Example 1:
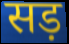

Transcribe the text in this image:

सड़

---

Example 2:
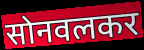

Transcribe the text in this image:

सोनवलकर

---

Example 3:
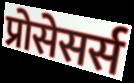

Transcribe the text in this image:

प्रोसेसर्स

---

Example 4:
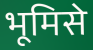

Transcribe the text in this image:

भूमिसे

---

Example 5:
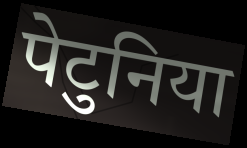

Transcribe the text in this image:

पेटुनिया